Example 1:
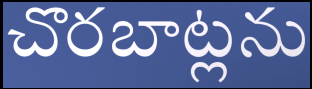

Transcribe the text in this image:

చొరబాట్లను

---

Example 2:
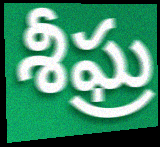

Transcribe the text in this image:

శీఘ్ర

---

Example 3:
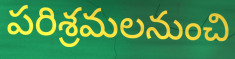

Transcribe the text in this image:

పరిశ్రమలనుంచి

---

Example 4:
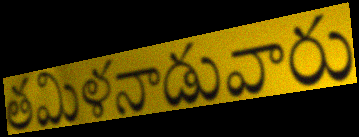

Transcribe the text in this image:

తమిళనాడువారు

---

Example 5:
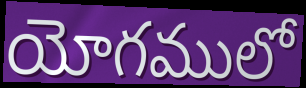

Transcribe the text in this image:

యోగములో